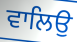
ਵਾਲਿਉ